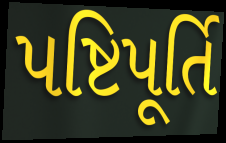
પષ્ટિપૂર્તિ